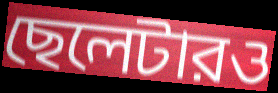
ছেলেটারও